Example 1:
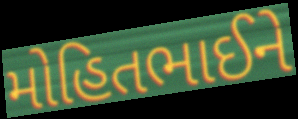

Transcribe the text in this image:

મોહિતભાઈને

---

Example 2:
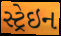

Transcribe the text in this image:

સ્ટ્રેઇન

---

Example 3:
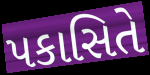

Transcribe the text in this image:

પકાસિતે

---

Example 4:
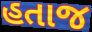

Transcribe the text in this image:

હતાજ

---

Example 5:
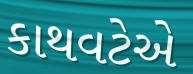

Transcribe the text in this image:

કાથવટેએ